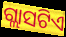
ଗ୍ଲାସଟିଏ